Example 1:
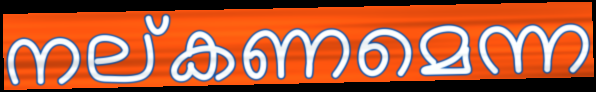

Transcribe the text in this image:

നല്കണമെന്ന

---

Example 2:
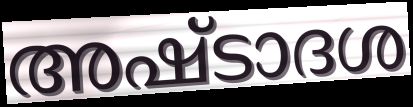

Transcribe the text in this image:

അഷ്ടാദശ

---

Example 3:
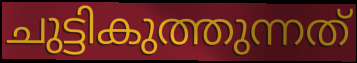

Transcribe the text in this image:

ചുട്ടികുത്തുന്നത്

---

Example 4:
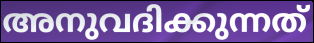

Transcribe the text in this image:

അനുവദിക്കുന്നത്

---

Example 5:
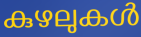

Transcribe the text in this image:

കുഴലുകൾ